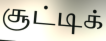
சூட்டிக்